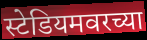
स्टेडियमवरच्या